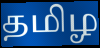
தமிழ